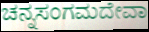
ಚನ್ನಸಂಗಮದೇವಾ